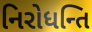
નિરોધન્તિ